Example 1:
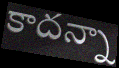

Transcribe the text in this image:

కాదన్నా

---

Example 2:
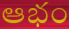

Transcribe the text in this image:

ఆభం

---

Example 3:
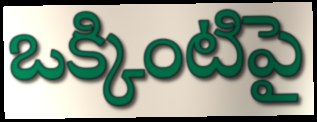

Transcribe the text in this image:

ఒక్కింటిపై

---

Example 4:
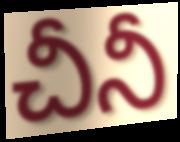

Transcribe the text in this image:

చీనీ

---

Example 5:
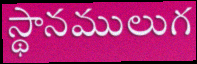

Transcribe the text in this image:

స్థానములుగ